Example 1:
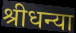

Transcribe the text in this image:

श्रीधन्या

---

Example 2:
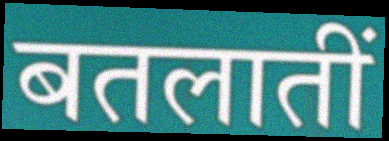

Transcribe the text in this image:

बतलातीं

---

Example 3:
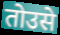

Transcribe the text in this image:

तोउसे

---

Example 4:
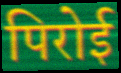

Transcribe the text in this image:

पिरोई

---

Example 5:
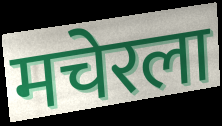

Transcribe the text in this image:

मचेरला